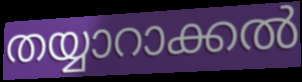
തയ്യാറാക്കൽ